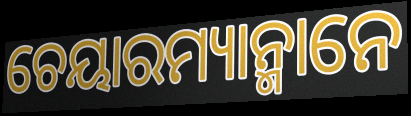
ଚେୟାରମ୍ୟାନ୍ମାନେ